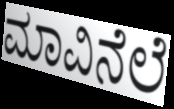
ಮಾವಿನೆಲೆ